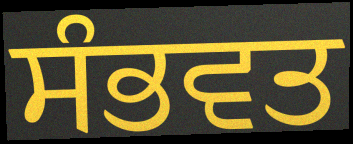
ਸੰਭਵਤ